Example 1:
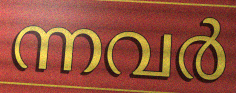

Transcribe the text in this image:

ന്നവർ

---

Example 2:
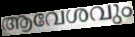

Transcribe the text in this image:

ആവേശവും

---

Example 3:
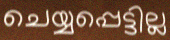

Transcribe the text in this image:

ചെയ്യപ്പെട്ടില്ല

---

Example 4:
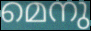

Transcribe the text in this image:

മെനു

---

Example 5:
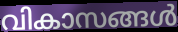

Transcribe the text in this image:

വികാസങ്ങൾ